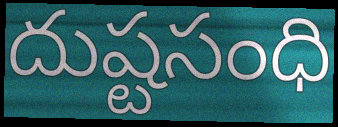
దుష్టసంధి